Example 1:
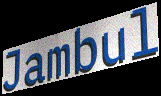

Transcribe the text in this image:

Jambul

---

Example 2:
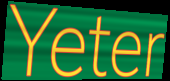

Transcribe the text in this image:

Yeter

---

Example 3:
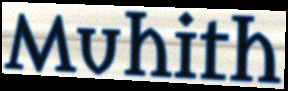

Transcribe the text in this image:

Muhith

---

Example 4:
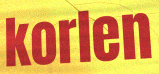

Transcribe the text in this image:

korlen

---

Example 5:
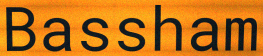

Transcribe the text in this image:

Bassham